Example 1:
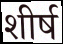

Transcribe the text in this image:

शीर्ष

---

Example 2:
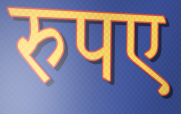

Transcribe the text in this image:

रुपए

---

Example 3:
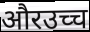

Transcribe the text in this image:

औरउच्च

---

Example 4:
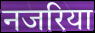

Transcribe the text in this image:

नजरिया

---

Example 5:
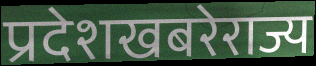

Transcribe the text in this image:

प्रदेशखबरेराज्य